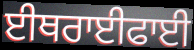
ਈਥਰਾਈਫਾਈ